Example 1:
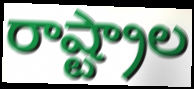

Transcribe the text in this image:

రాష్ట్రాల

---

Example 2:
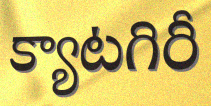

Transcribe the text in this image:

క్యాటగిరీ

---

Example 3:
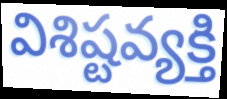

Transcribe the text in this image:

విశిష్టవ్యక్తి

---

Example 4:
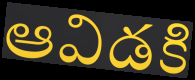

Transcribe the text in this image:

ఆవిడకి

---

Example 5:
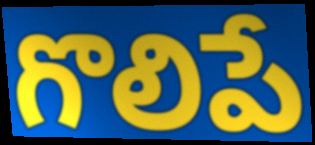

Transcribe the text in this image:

గొలిపే